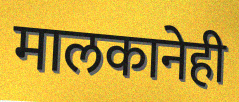
मालकानेही